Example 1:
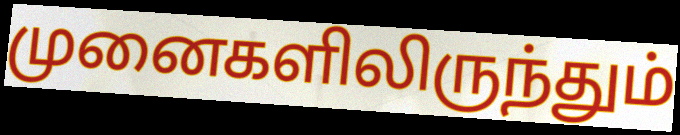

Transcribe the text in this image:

முனைகளிலிருந்தும்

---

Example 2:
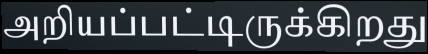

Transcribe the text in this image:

அறியப்பட்டிருக்கிறது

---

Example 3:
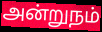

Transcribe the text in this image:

அன்றுநம்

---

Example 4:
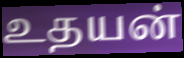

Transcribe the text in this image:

உதயன்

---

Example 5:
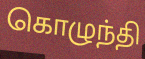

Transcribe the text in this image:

கொழுந்தி